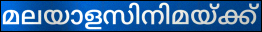
മലയാളസിനിമയ്ക്ക്